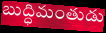
బుద్ధిమంతుడు